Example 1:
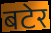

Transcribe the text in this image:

बटेर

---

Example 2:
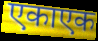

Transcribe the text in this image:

एकाएक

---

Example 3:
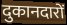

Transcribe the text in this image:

दुकानदारों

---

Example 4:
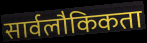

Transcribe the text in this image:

सार्वलौकिकता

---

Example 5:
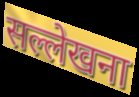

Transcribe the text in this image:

सल्लेखना